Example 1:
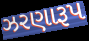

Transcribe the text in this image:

ઝરણારૂપ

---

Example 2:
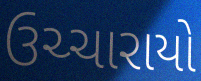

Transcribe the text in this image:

ઉચ્ચારાયો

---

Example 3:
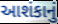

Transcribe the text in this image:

આશંકાનું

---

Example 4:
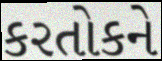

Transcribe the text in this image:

કરતોકને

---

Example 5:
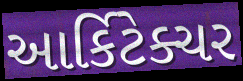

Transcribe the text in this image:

આર્કિટેક્ચર